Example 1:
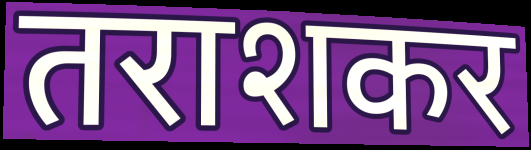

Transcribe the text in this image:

तराशकर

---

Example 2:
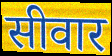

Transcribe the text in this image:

सीवार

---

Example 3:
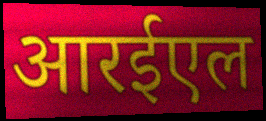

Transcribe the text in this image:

आरईएल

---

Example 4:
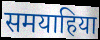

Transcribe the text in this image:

समयाहिया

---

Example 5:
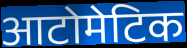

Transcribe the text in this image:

आटोमेटिक